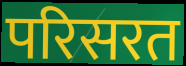
परिसरत